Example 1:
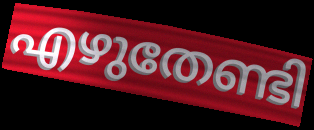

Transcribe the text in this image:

എഴുതേണ്ടി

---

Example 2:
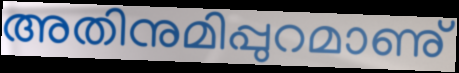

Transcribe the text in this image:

അതിനുമിപ്പുറമാണു്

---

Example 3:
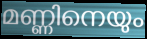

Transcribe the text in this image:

മണ്ണിനെയും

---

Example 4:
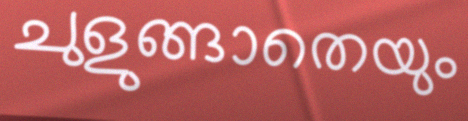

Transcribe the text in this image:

ചുളുങ്ങാതെയും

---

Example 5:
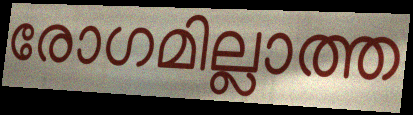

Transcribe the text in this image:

രോഗമില്ലാത്ത